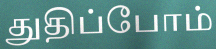
துதிப்போம்